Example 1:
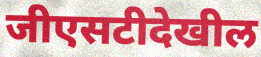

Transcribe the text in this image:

जीएसटीदेखील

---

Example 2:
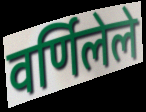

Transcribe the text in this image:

वर्णिलेले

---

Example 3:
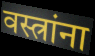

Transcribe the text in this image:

वस्त्रांना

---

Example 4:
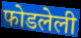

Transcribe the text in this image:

फोडलेली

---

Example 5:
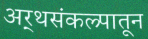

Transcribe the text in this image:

अर्थसंकल्पातून